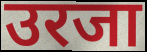
उरजा